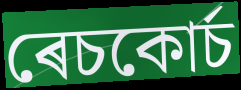
ৰেচকোৰ্চ